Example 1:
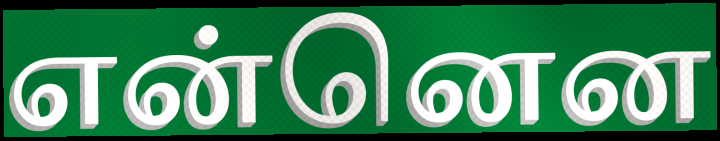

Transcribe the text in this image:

என்னென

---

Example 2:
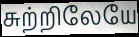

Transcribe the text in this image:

சுற்றிலேயே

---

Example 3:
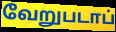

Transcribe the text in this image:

வேறுபடாப்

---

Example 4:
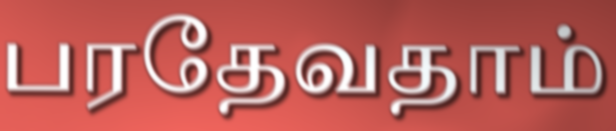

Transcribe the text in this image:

பரதேவதாம்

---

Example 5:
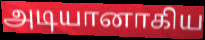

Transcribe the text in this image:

அடியானாகிய